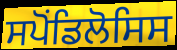
ਸਪੋਂਡਿਲੋਸਿਸ